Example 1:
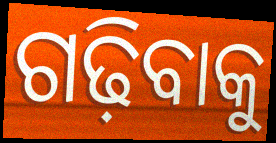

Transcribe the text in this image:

ଗଢ଼ିବାକୁ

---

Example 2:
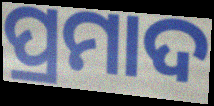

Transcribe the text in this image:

ପ୍ରମାଦ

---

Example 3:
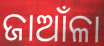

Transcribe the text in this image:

ଜାଆଁଳା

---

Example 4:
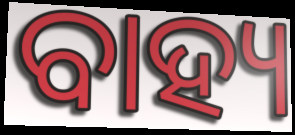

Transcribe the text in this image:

ବାହ୍ୟ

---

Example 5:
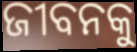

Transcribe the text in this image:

ଜୀବନକୁ